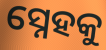
ସ୍ନେହକୁ